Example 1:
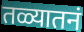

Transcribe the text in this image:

तळ्यातनं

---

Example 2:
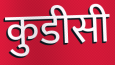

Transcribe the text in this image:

कुडीसी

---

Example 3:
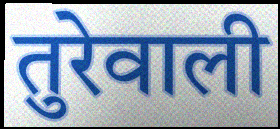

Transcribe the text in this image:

तुरेवाली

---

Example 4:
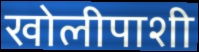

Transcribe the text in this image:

खोलीपाशी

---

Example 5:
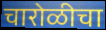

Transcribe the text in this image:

चारोळीचा